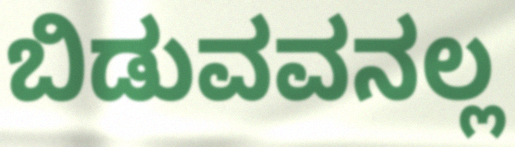
ಬಿಡುವವನಲ್ಲ